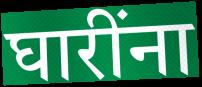
घारींना